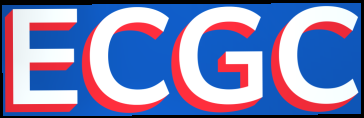
ECGC